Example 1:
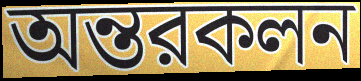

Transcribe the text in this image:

অন্তরকলন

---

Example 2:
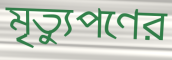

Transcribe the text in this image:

মৃত্যুপণের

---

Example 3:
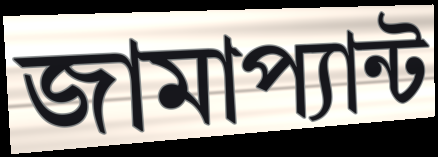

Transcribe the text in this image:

জামাপ্যান্ট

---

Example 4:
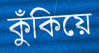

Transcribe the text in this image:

কুঁকিয়ে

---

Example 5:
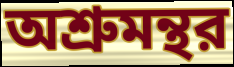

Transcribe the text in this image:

অশ্রুমন্থর